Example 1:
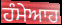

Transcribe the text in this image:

ਹੰਮੇਆਹ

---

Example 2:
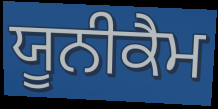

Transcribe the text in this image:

ਯੂਨੀਕੈਮ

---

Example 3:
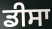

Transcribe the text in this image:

ਡੀਸਾ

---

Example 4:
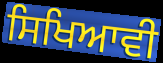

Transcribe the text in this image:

ਸਿਖਿਆਵੀ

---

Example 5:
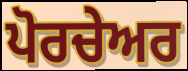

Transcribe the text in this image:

ਪੋਰਚੇਅਰ